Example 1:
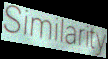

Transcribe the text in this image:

Similarity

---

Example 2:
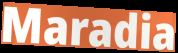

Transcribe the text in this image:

Maradia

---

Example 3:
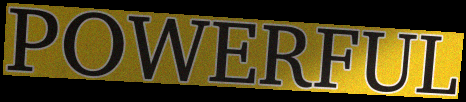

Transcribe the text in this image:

POWERFUL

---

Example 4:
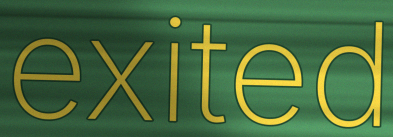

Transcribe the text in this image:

exited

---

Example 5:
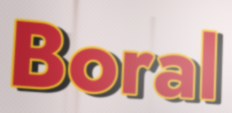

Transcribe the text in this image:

Boral